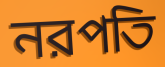
নরপতি